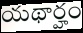
యథార్హం